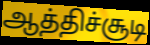
ஆத்திச்சூடி